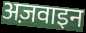
अज़वाइन